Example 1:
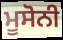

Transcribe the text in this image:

ਮੂਸੋਨੀ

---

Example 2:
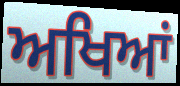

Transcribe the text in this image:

ਅਖਿਆਂ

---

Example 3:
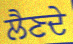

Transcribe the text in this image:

ਲੈਣਦੇ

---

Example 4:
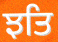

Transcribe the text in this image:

ਝਤਿ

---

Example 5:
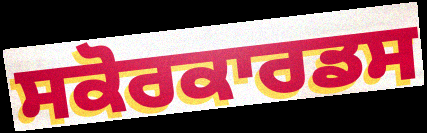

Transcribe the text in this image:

ਸਕੋਰਕਾਰਡਸ